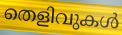
തെളിവുകൾ